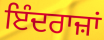
ਇੰਦਰਾਜ਼ਾਂ